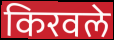
किरवले